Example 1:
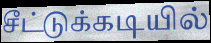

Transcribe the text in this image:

சீட்டுக்கடியில்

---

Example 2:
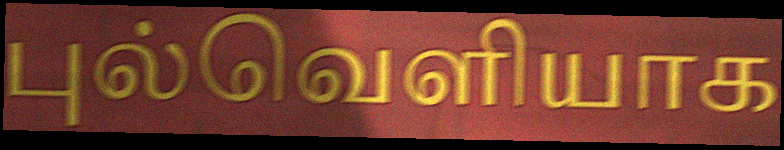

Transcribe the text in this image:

புல்வெளியாக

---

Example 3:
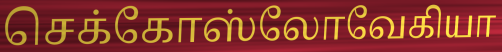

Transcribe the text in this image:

செக்கோஸ்லோவேகியா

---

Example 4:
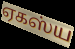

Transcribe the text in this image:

ஏகஸ்ய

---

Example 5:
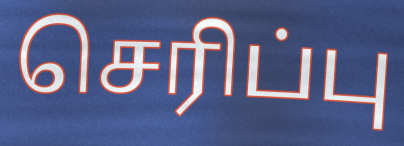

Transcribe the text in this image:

செரிப்பு